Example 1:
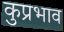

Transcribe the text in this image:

कुप्रभाव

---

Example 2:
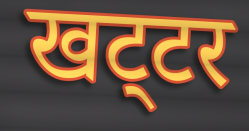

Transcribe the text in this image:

खट्‌टर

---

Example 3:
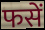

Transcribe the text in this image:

फसें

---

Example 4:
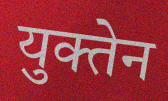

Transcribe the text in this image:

युक्तेन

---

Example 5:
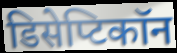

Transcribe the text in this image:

डिसेप्टिकॉन